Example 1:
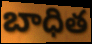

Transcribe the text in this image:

బాధిత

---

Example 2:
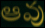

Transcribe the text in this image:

ఆవు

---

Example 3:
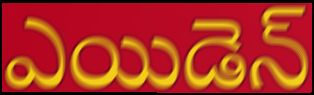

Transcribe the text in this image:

ఎయిడెన్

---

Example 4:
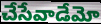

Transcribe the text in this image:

చేసేవాడేమో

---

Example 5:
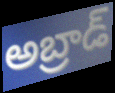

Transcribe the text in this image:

అబ్రాడ్